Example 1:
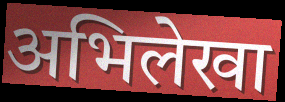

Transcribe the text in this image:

अभिलेखा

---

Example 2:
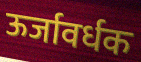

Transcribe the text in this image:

ऊर्जावर्धक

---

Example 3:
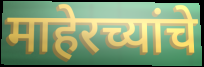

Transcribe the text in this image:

माहेरच्यांचे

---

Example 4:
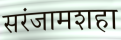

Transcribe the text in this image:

सरंजामशहा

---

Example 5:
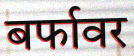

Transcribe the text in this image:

बर्फावर